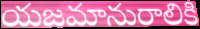
యజమానురాలికి